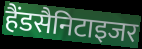
हैंडसैनिटाइजर